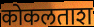
कोकलताश